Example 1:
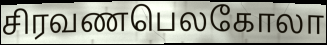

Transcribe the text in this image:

சிரவணபெலகோலா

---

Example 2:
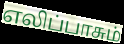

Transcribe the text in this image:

எலிப்பாசும்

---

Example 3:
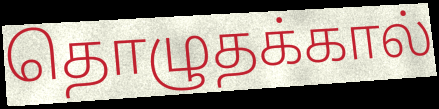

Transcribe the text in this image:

தொழுதக்கால்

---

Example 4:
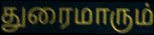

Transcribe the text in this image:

துரைமாரும்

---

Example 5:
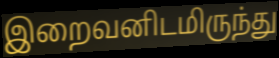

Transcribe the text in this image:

இறைவனிடமிருந்து